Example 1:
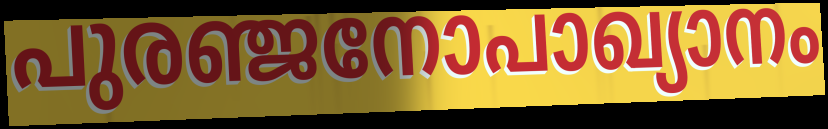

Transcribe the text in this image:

പുരഞ്ജനോപാഖ്യാനം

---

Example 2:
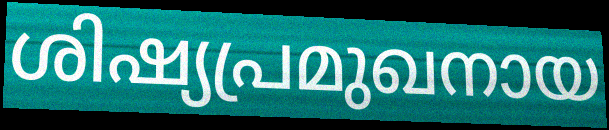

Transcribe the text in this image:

ശിഷ്യപ്രമുഖനായ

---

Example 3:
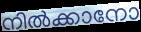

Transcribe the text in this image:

നിൽക്കാനോ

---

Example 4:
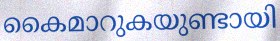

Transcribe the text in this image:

കൈമാറുകയുണ്ടായി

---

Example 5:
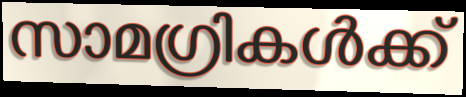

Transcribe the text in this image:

സാമഗ്രികൾക്ക്